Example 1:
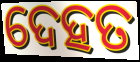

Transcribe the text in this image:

ଦେହତ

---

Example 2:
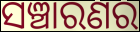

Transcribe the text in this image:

ସଞ୍ଚାରଣର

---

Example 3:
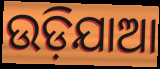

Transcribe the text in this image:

ଉଡ଼ିଯାଆ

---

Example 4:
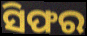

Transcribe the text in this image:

ସିଫର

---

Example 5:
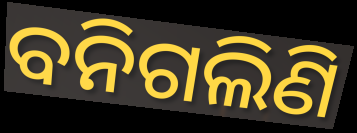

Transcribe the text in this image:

ବନିଗଲିଣି